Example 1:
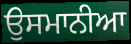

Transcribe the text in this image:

ਉਸਮਾਨੀਆ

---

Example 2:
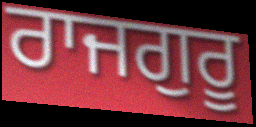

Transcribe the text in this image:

ਰਾਜਗੁਰੂ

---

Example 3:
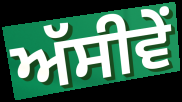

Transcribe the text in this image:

ਅੱਸੀਵੇਂ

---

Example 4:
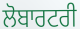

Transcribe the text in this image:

ਲੋਬਾਰਟਰੀ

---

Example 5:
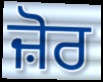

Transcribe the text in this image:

ਜ਼ੋਰ